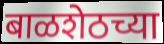
बाळशेठच्या